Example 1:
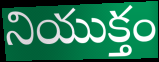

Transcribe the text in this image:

నియుక్తం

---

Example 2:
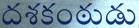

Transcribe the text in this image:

దశకంఠుడు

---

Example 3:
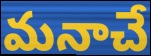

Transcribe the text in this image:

మనాచే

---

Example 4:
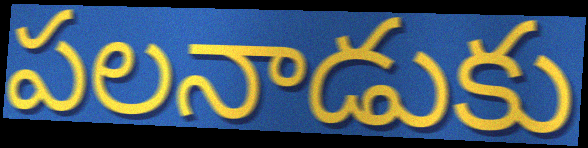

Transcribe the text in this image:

పలనాడుకు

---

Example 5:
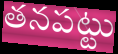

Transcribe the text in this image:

తనపట్టు